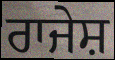
ਰਾਜੇਸ਼